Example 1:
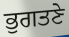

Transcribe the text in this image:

ਭੁਗਤਣੇ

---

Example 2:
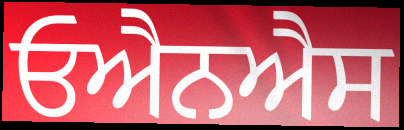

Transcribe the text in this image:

ਓਐਨਐਸ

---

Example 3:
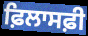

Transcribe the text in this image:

ਫ਼ਿਲਾਸਫ਼ੀ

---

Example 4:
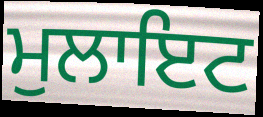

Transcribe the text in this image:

ਮੁਲਾਇਟ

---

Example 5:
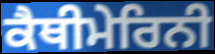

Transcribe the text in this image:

ਕੈਥੀਮੇਰਿਨੀ